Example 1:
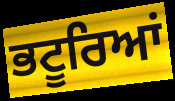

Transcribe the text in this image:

ਭਟੂਰਿਆਂ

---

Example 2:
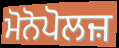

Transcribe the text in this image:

ਮੋਨੋਪੋਲਜ਼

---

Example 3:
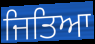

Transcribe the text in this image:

ਜਿਤਿਆ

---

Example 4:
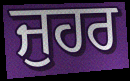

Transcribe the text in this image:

ਜੁਹਰ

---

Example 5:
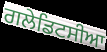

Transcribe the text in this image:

ਗਲੇਡਿਟਸੀਆ